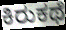
ಕಿರುಕಥೆ